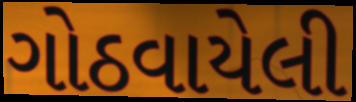
ગોઠવાયેલી